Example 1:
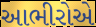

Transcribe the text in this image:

આભીરોએ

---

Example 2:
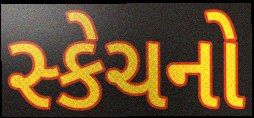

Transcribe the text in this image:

સ્કેચનો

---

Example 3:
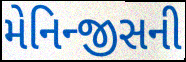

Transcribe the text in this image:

મેનિન્જીસની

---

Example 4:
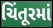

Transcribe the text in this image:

ચિંતૂરમાં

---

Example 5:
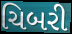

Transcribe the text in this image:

ચિબરી